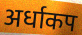
अर्धाकप